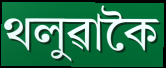
থলুৱাকৈ